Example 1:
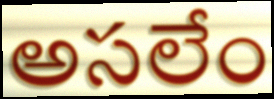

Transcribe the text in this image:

అసలేం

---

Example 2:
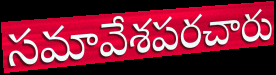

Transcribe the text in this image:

సమావేశపరచారు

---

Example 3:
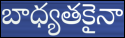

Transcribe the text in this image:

బాధ్యతకైనా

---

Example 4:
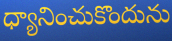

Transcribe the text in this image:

ధ్యానించుకొందును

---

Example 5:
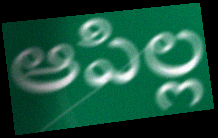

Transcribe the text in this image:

ఆపిల్ల